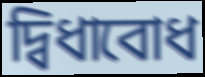
দ্বিধাবোধ